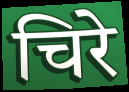
चिरे